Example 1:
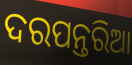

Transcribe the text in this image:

ଦରପନ୍ତରିଆ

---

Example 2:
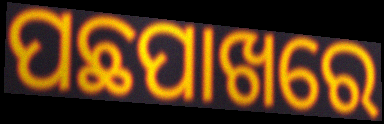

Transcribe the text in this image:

ପଛପାଖରେ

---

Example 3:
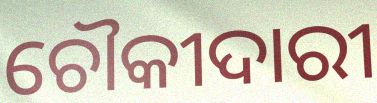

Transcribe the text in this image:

ଚୌକୀଦାରୀ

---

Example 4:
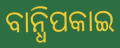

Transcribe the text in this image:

ବାନ୍ଧିପକାଇ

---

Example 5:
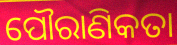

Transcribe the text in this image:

ପୌରାଣିକତା